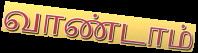
வாண்டாம்